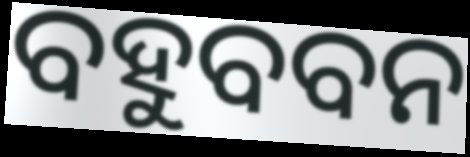
ବହୁବବନ